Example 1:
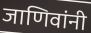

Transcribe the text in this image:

जाणिवांनी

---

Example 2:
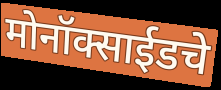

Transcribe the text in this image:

मोनॉक्साईडचे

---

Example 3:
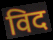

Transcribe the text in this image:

विद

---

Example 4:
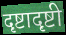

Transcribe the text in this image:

दृष्टादृष्टी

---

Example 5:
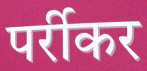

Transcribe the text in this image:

पर्रीकर